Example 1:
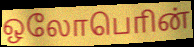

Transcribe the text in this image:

ஒலோபெரின்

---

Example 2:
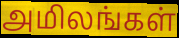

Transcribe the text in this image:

அமிலங்கள்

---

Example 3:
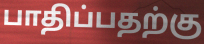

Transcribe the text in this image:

பாதிப்பதற்கு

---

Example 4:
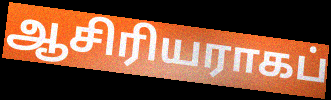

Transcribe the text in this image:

ஆசிரியராகப்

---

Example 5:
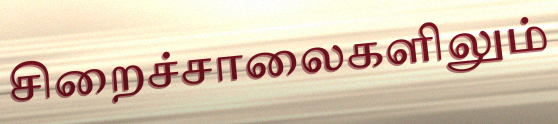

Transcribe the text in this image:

சிறைச்சாலைகளிலும்